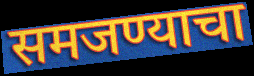
समजण्याचा